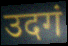
उदगं